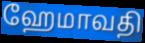
ஹேமாவதி